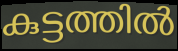
കുട്ടത്തിൽ